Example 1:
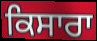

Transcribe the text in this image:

ਕਿਸਾਰਾ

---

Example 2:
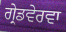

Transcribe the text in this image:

ਗ੍ਰੇਡਵੇਰਵਾ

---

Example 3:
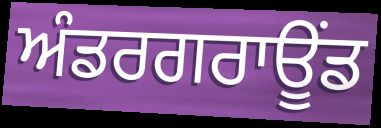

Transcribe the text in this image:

ਅੰਡਰਗਰਾਊੰਡ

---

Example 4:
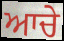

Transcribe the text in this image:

ਆਚੇ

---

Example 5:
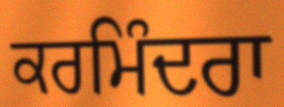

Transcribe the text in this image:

ਕਰਮਿੰਦਰਾ